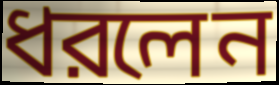
ধরলেন